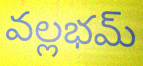
వల్లభమ్